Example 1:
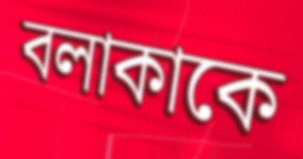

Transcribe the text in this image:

বলাকাকে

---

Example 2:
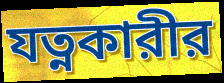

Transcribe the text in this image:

যত্নকারীর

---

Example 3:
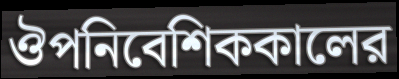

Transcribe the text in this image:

ঔপনিবেশিককালের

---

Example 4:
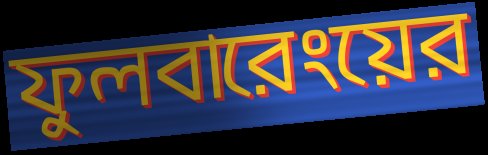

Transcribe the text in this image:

ফুলবারেংয়ের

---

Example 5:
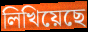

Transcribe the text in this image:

লিখিয়েছে